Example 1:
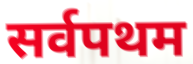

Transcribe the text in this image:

सर्वपथम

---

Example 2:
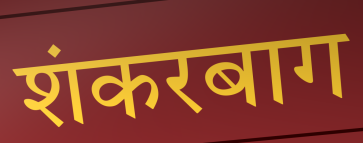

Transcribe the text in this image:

शंकरबाग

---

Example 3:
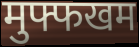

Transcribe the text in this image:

मुफ्फखम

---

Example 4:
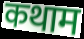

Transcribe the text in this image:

कथाम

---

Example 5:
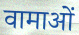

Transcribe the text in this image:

वामाओं